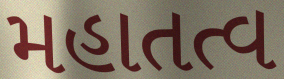
મહાતત્વ